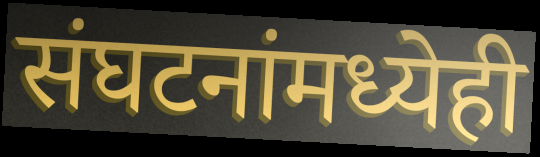
संघटनांमध्येही